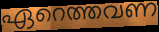
ഏറെത്തവണ